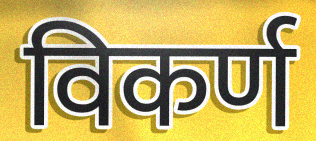
विकर्ण